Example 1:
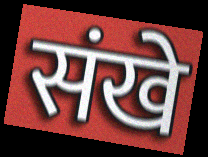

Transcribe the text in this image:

संखे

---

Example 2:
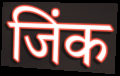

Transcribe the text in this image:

जिंक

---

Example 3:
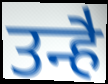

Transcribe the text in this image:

उन्है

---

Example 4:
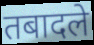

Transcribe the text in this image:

तबादले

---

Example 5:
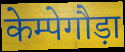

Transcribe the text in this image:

केम्पेगौड़ा